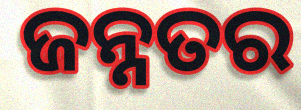
ଜନ୍ନତର